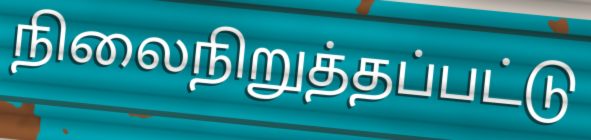
நிலைநிறுத்தப்பட்டு